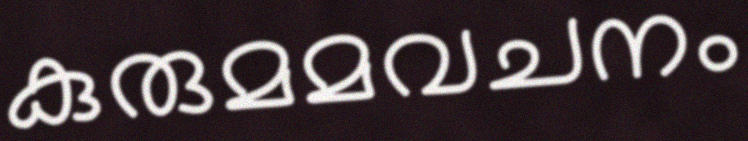
കുരുമമവചനം